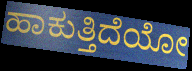
ಹಾಕುತ್ತಿದೆಯೋ